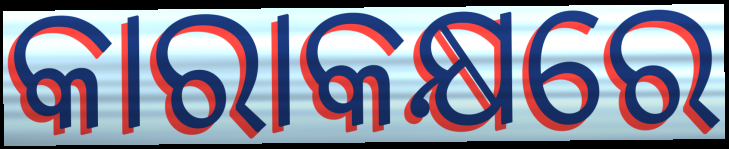
କାରାକକ୍ଷରେ